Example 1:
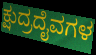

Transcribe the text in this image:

ಕ್ಷುದ್ರದೈವಗಳ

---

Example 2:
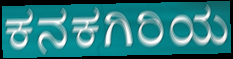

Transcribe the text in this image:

ಕನಕಗಿರಿಯ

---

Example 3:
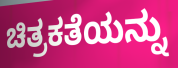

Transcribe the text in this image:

ಚಿತ್ರಕತೆಯನ್ನು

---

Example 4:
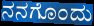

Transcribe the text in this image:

ನನಗೊಂದು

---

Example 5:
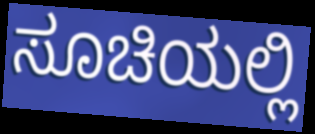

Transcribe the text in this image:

ಸೂಚಿಯಲ್ಲಿ